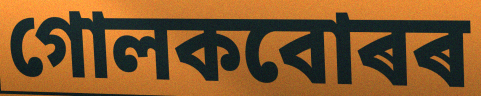
গোলকবোৰৰ